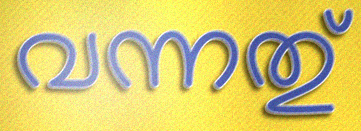
വന്നതു്